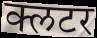
क्लटर